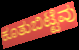
ಕೂತುಬಿಟ್ಟೆವು